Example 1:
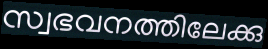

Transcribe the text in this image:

സ്വഭവനത്തിലേക്കു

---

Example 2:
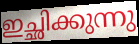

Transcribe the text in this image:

ഇച്ഛിക്കുന്നു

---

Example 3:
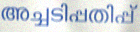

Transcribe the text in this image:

അച്ചടിപ്പതിപ്പ്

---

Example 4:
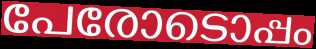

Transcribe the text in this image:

പേരോടൊപ്പം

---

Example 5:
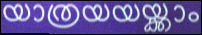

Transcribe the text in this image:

യാത്രയയയ്ക്കാം